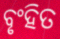
ବୃଂହିତ